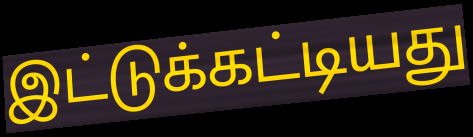
இட்டுக்கட்டியது